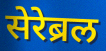
सेरेब्रल